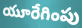
యూరేగింపు